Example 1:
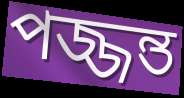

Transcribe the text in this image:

পজ্জন্ত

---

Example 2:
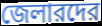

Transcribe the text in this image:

জেলারদের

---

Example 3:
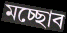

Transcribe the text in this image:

মচ্ছোব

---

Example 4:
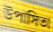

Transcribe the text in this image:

উপাসিতা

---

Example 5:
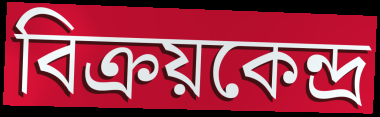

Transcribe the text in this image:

বিক্রয়কেন্দ্র